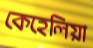
কেহেলিয়া